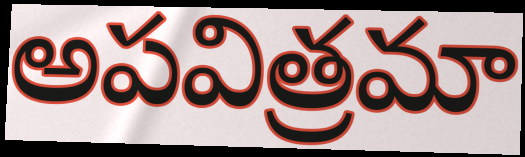
అపవిత్రమా